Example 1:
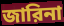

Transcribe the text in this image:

জারিনা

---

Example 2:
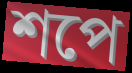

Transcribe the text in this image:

শপে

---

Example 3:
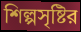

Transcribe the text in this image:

শিল্পসৃষ্টির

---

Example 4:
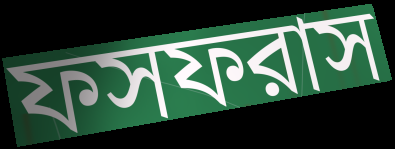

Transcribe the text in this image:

ফসফরাস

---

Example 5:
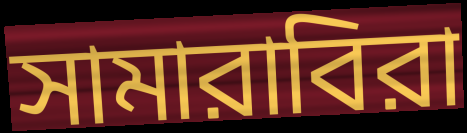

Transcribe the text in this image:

সামারাবিরা